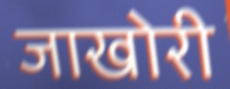
जाखोरी